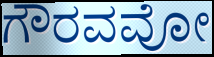
ಗೌರವವೋ